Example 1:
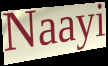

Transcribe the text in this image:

Naayi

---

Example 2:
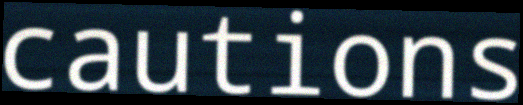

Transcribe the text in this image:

cautions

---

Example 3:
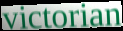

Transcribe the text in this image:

victorian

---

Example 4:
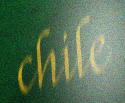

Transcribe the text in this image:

chile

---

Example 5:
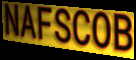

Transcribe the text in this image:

NAFSCOB